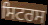
ਸਿਟਰਸ